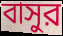
বাসুর